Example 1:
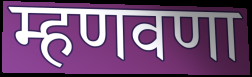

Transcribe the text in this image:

म्हणवणा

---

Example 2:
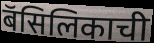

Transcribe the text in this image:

बॅसिलिकाची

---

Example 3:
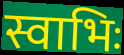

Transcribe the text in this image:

स्वाभिः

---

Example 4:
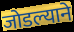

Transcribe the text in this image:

जोडल्याने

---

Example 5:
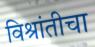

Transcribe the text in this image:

विश्रांतीचा